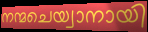
നന്മചെയ്വാനായി